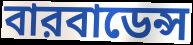
বারবাডেন্স